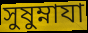
সুষুম্নাযা